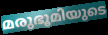
മരുഭൂമിയുടെ